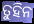
ତୁହିନ